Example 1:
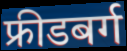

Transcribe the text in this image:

फ्रीडबर्ग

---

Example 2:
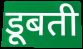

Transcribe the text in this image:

डूबती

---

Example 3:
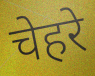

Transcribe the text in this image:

चेहरे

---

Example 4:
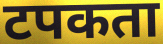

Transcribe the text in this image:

टपकता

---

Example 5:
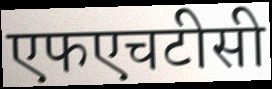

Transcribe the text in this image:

एफएचटीसी